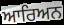
ਆਰਿਅਨ